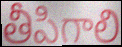
తీపిగాలి